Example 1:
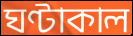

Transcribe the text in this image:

ঘণ্টাকাল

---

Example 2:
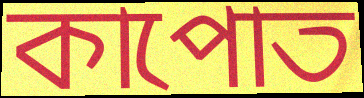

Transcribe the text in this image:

কাপোত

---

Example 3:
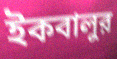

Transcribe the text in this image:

ইকবালুর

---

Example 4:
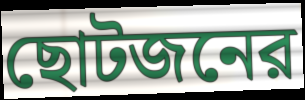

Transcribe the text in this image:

ছোটজনের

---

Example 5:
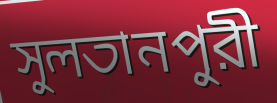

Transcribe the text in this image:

সুলতানপুরী